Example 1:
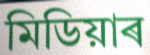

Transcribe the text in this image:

মিডিয়াৰ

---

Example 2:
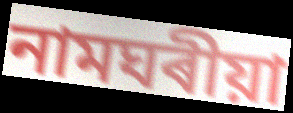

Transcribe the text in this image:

নামঘৰীয়া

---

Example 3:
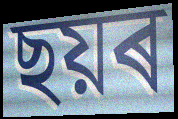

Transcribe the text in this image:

ছয়ৰ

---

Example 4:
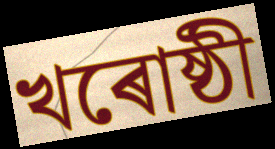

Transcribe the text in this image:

খৰোষ্ঠী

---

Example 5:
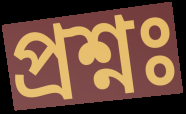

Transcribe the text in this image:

প্ৰশ্নঃ